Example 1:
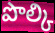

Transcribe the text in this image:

పొల్కి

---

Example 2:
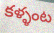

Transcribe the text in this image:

కళ్ళంట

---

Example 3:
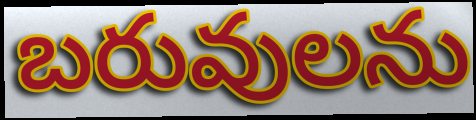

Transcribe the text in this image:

బరువులను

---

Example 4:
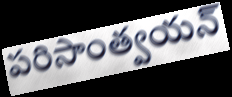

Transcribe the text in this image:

పరిసాంత్వయన్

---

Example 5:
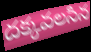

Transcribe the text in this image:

దక్కవలసిన